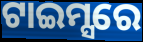
ଟାଇମ୍ସରେ